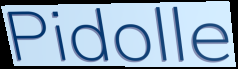
Pidolle